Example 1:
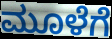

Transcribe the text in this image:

ಮೂಳೆಗೆ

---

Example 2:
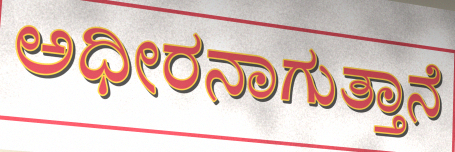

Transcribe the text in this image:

ಅಧೀರನಾಗುತ್ತಾನೆ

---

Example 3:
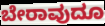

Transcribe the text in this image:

ಬೇರಾವುದೂ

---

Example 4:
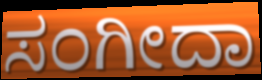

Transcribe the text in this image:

ಸಂಗೀದಾ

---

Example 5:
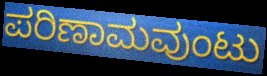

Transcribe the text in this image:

ಪರಿಣಾಮವುಂಟು